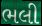
ભલી